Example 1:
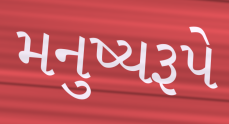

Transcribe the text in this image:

મનુષ્યરૂપે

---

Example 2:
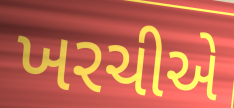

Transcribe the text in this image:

ખરચીએ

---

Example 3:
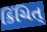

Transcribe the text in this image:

કિંચિત્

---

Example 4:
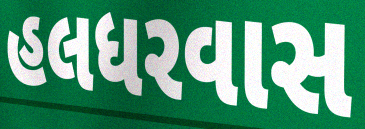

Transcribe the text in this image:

હલધરવાસ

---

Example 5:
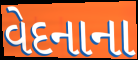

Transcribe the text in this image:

વેદનાના